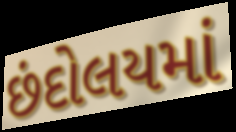
છંદોલયમાં